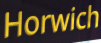
Horwich